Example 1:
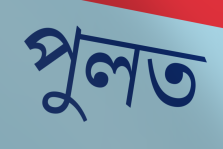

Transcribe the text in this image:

পুলত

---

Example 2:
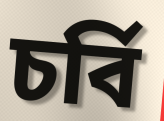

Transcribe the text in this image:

চৰ্বি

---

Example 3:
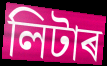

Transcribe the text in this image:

লিটাৰ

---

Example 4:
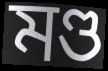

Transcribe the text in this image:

মণ্ড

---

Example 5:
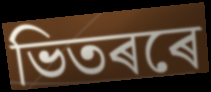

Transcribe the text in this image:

ভিতৰৰে